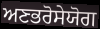
ਅਣਭਰੋਸੇਯੋਗ